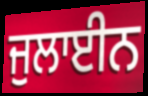
ਜੁਲਾਈਨ